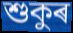
শুকুৰ